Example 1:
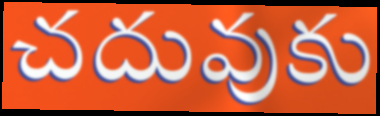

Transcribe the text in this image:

చదువుకు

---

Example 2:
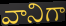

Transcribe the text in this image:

వానిగా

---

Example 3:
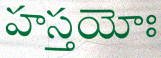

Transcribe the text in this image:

హస్తయోః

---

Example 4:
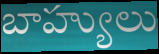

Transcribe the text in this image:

బాహ్యులు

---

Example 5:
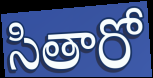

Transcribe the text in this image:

సితారో